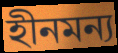
হীনমন্য